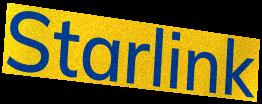
Starlink